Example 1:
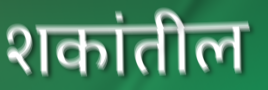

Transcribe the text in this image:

शकांतील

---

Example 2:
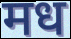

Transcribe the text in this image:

मध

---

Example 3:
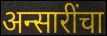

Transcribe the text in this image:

अन्सारींचा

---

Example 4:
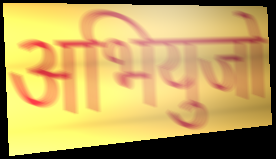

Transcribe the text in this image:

अभियुजो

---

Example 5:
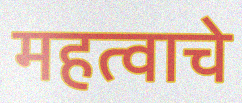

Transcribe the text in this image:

महत्वाचे